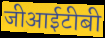
जीआईटीबी